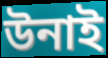
উনাই